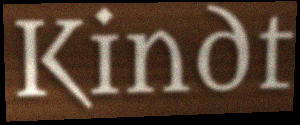
Kindt